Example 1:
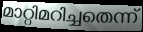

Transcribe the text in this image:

മാറ്റിമറിച്ചതെന്ന്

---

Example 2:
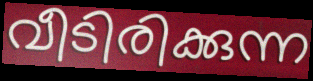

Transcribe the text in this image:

വീടിരിക്കുന്ന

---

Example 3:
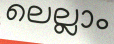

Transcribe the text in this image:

ലെല്ലാം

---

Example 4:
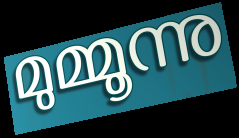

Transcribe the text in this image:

മുമ്മൂന്നു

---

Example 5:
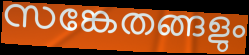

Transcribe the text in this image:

സങ്കേതങ്ങളും